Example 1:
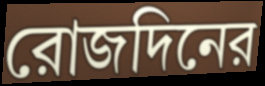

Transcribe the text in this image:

রোজদিনের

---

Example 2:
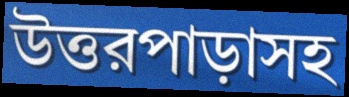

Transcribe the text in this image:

উত্তরপাড়াসহ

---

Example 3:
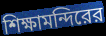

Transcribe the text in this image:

শিক্ষামন্দিরের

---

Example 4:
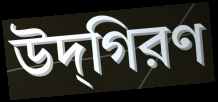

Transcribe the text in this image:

উদ্‌গিরণ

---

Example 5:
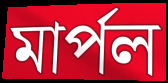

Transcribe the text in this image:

মার্পল